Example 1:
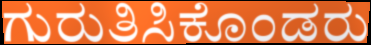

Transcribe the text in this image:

ಗುರುತಿಸಿಕೊಂಡರು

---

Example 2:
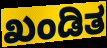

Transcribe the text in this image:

ಖಂಡಿತ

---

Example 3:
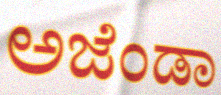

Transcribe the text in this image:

ಅಜೆಂಡಾ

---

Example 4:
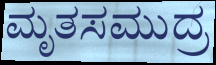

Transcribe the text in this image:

ಮೃತಸಮುದ್ರ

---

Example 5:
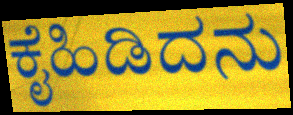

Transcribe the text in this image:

ಕೈಹಿಡಿದನು